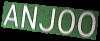
ANJOO